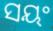
ସୟଂ